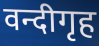
वन्दीगृह